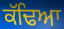
ਕੱਢਿਆ